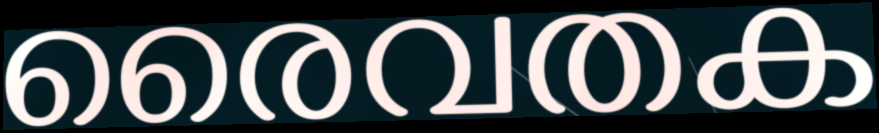
രൈവതക